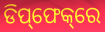
ଡିପ୍‌ଫେକ୍‌ରେ